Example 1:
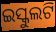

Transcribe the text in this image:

ଇସ୍କୁଲଟି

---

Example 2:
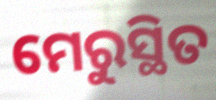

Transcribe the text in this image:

ମେରୁସ୍ଥିତ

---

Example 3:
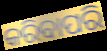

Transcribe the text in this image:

କରିବାପରି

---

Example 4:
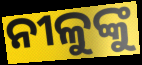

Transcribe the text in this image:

ନୀଳୁଙ୍କୁ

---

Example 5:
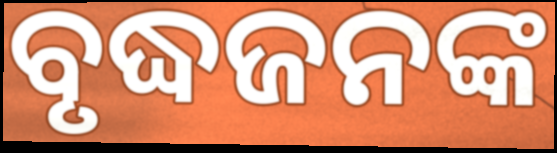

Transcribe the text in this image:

ବୃଦ୍ଧଜନଙ୍କ